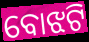
ବୋଝଟି